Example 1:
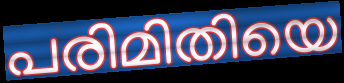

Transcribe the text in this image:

പരിമിതിയെ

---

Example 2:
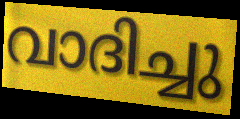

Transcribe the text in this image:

വാദിച്ചു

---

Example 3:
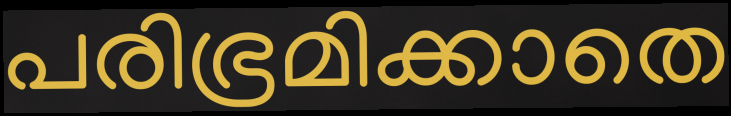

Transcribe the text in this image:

പരിഭ്രമിക്കാതെ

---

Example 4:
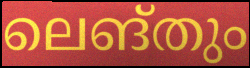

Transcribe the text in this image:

ലെങ്തും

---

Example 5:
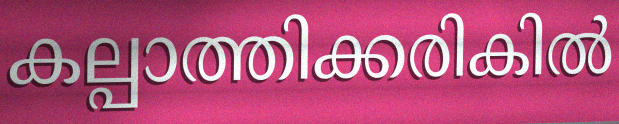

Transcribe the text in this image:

കല്പാത്തിക്കരികിൽ